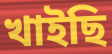
খাইছি